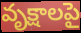
వృక్షాలపై